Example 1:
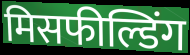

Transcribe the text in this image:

मिसफील्डिंग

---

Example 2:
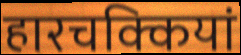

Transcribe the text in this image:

हारचक्कियां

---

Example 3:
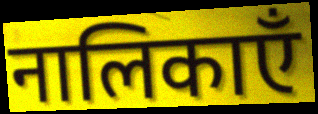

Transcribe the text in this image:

नालिकाएँ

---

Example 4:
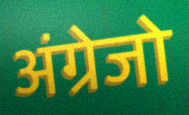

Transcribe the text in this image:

अंग्रेजो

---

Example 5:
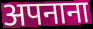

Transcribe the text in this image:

अपनाना